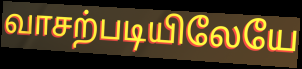
வாசற்படியிலேயே